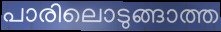
പാരിലൊടുങ്ങാത്ത